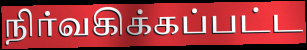
நிர்வகிக்கப்பட்ட